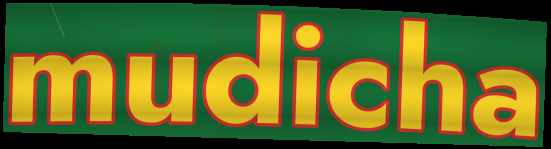
mudicha